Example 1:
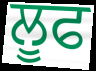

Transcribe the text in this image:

ਲੂਫ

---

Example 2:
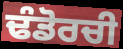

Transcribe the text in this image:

ਢੰਡੋਰਚੀ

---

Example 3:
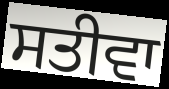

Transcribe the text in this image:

ਸਤੀਵਾ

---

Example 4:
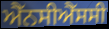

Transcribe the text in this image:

ਐੱਨਸੀਐੱਸਸੀ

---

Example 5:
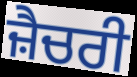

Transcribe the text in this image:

ਜ਼ੈਚਰੀ